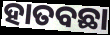
ହାତବଛା